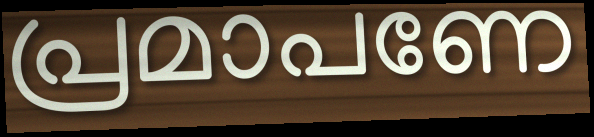
പ്രമാപണേ